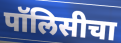
पॉलिसीचा